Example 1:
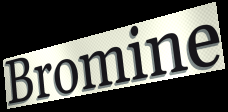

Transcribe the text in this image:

Bromine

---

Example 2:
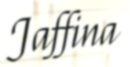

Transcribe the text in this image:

Jaffina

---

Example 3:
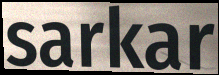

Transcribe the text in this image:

sarkar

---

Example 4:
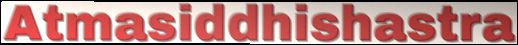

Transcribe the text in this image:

Atmasiddhishastra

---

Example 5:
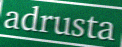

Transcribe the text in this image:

adrusta